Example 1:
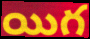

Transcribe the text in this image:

యిగ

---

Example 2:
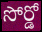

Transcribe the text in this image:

సోర్డో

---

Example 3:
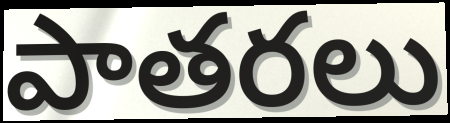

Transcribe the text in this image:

పాతరలు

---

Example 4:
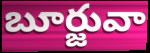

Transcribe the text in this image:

బూర్జువా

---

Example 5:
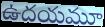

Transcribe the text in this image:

ఉదయమూ